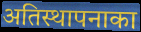
अतिस्थापनाका